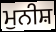
ਮੁਨੀਸ਼